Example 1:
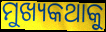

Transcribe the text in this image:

ମୁଖ୍ୟକଥାକୁ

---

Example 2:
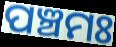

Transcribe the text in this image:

ପଞ୍ଚମଃ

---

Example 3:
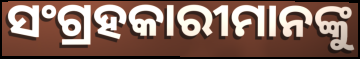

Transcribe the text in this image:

ସଂଗ୍ରହକାରୀମାନଙ୍କୁ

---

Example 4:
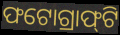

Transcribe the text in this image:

ଫଟୋଗ୍ରାଫ୍‌ଟି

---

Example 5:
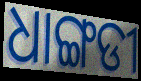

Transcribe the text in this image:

ଧାଙ୍ଗଡୀ